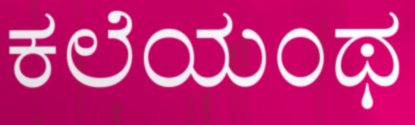
ಕಲೆಯಂಥ